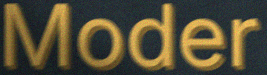
Moder